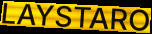
LAYSTARO